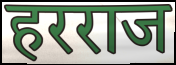
हरराज